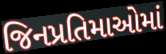
જિનપ્રતિમાઓમાં